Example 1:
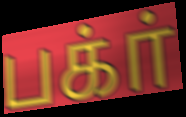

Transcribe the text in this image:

பக்ர்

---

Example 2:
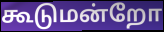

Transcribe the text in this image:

கூடுமன்றோ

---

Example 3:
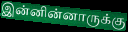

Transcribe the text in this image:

இன்னின்னாருக்கு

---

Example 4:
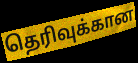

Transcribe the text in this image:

தெரிவுக்கான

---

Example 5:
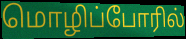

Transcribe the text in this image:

மொழிப்போரில்